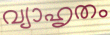
വ്യാഹൃതം